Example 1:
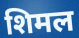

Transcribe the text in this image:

शिमल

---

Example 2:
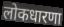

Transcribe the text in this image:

लोकधारणा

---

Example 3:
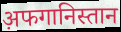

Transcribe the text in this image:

अ़फगानिस्तान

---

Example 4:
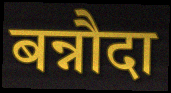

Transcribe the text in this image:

बन्नौदा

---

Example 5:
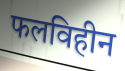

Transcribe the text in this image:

फलविहीन